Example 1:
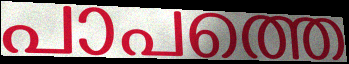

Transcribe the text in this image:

പാപത്തെ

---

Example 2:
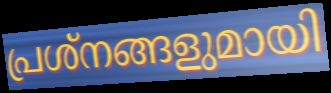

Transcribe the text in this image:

പ്രശ്നങ്ങളുമായി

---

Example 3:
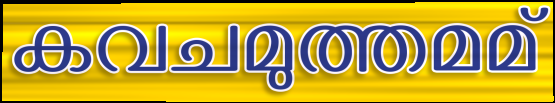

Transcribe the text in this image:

കവചമുത്തമമ്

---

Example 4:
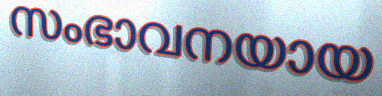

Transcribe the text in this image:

സംഭാവനയായ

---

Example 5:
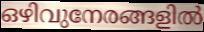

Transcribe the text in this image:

ഒഴിവുനേരങ്ങളിൽ